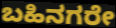
ಬಹಿನಗರೇ